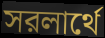
সরলার্থে